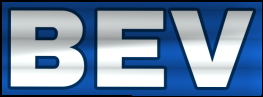
BEV